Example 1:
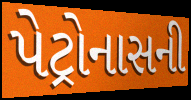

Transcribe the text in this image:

પેટ્રોનાસની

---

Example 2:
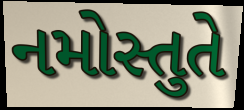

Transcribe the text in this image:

નમોસ્તુતે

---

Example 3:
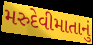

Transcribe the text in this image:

મરુદેવીમાતાનું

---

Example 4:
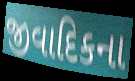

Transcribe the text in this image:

જીવાદિકના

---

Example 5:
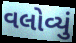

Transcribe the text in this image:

વલોવ્યું